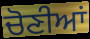
ਚੋਣੀਆਂ